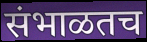
संभाळतच